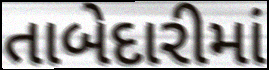
તાબેદારીમાં